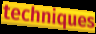
techniques